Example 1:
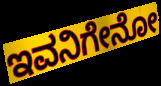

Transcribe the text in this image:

ಇವನಿಗೇನೋ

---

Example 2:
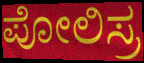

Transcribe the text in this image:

ಪೋಲಿಸ್ರ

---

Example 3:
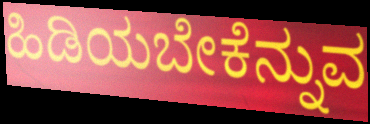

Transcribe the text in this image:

ಹಿಡಿಯಬೇಕೆನ್ನುವ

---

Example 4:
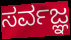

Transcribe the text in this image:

ಸರ್ವಜ್ಞ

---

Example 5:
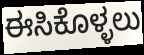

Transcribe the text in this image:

ಈಸಿಕೊಳ್ಳಲು